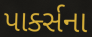
પાર્ક્સના